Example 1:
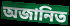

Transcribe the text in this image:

অজানিত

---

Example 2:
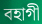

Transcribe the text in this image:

বহাগী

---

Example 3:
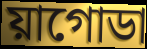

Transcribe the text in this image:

য়াগোডা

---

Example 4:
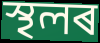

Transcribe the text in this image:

স্থলৰ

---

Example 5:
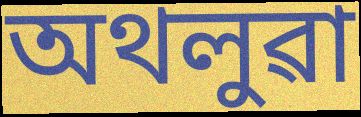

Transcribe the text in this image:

অথলুৱা